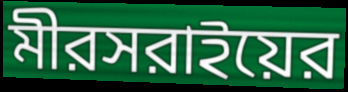
মীরসরাইয়ের